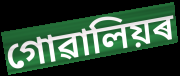
গোৱালিয়ৰ